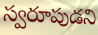
స్వరూపుడని